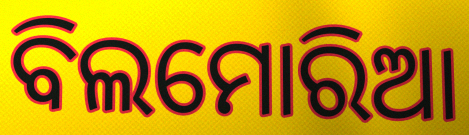
ବିଲମୋରିଆ